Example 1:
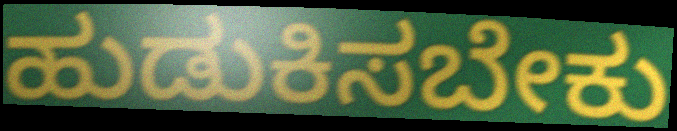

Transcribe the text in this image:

ಹುಡುಕಿಸಬೇಕು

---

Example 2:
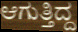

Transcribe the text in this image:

ಆಗುತ್ತಿದ್ದ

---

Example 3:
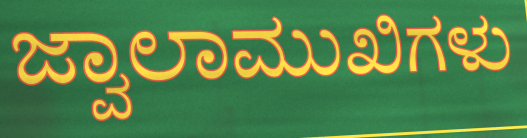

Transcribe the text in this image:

ಜ್ವಾಲಾಮುಖಿಗಳು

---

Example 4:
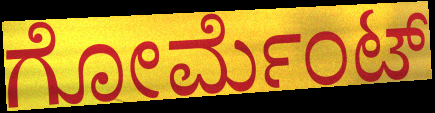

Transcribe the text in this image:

ಗೋರ್ಮೆಂಟ್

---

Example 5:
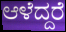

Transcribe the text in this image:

ಆಳೆದ್ದರೆ